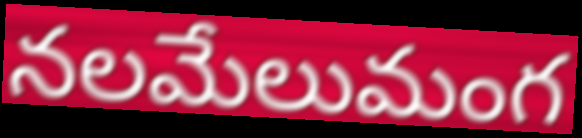
నలమేలుమంగ